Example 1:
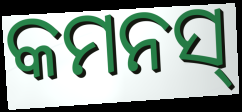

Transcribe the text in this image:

କମନସ୍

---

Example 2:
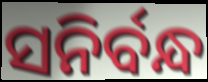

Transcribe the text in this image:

ସନିର୍ବନ୍ଧ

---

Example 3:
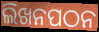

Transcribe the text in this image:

ଲିଖନପଠନ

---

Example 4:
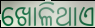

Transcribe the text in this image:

ଖୋଳିଥାଏ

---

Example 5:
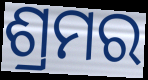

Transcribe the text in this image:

ଶ୍ରମର